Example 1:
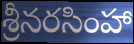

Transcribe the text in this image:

శ్రీనరసింహా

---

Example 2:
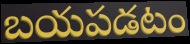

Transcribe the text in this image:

బయపడటం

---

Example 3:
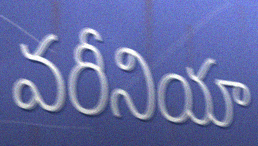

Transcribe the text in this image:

వరీనియా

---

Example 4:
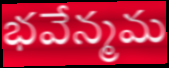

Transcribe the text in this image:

భవేన్మమ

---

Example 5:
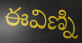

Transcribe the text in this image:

ఈవిణ్ని